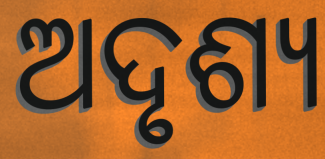
ଅଦୃଶ୍ୟ